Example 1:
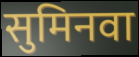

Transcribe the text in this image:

सुमिनवा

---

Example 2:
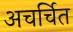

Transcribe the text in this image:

अचर्चित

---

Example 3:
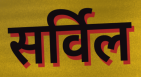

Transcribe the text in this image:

सर्विल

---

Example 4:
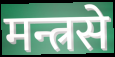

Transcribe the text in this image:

मन्त्रसे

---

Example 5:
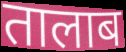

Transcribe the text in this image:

तालाब